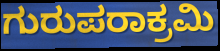
ಗುರುಪರಾಕ್ರಮಿ